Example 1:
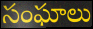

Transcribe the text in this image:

సంఘాలు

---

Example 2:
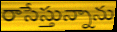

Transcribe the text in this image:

రాసేస్తున్నాను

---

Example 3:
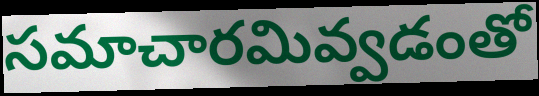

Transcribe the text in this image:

సమాచారమివ్వడంతో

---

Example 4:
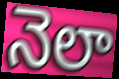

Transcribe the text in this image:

నెలా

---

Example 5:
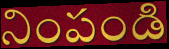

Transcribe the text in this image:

నింపండి